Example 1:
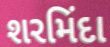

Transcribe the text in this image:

શરમિંદા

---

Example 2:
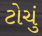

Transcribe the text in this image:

ટોચું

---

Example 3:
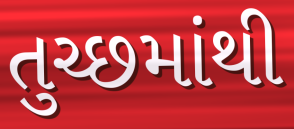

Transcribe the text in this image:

તુચ્છમાંથી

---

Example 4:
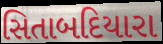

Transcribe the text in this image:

સિતાબદિયારા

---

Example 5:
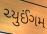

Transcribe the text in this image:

ચ્યુઈંગમ